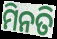
ମିନତି